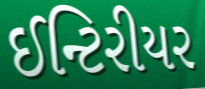
ઈન્ટિરીયર